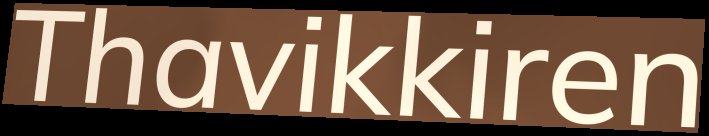
Thavikkiren